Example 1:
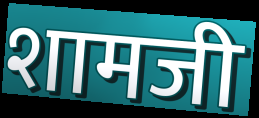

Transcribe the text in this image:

शामजी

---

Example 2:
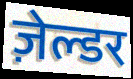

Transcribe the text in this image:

ज़ेल्डर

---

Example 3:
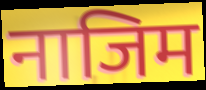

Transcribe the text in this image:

नाजिम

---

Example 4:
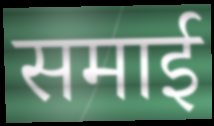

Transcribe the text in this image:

समाई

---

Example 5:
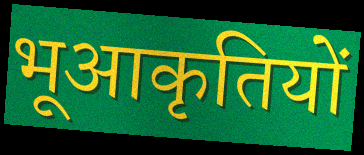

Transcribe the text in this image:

भूआकृतियों